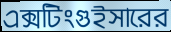
এক্সটিংগুইসারের